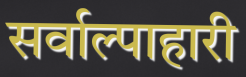
सर्वाल्पाहारी